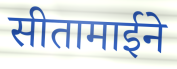
सीतामाईने